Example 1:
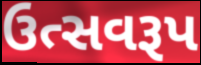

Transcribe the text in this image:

ઉત્સવરૂપ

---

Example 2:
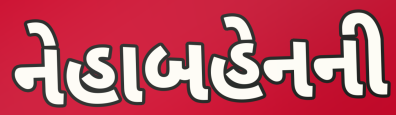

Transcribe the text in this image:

નેહાબહેનની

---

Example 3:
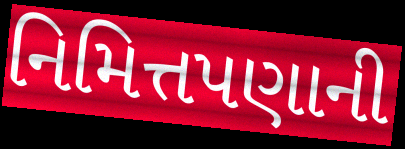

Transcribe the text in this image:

નિમિત્તપણાની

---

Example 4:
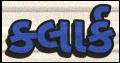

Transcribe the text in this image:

ક્લાર્ક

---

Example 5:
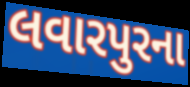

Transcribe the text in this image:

લવારપુરના